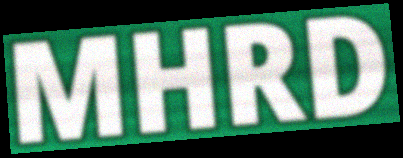
MHRD